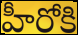
హీరోకి